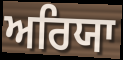
ਅਰਿਯਾ